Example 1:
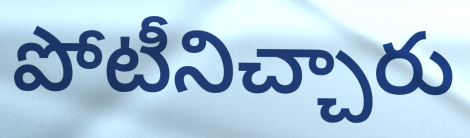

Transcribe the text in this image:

పోటీనిచ్చారు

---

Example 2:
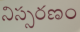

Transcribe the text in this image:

నిస్సరణం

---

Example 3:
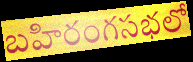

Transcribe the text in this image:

బహిరంగసభలో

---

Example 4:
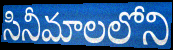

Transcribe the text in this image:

సినీమాలలోని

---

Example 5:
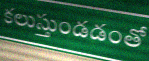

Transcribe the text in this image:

కలుస్తుండడంతో